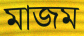
মাজম